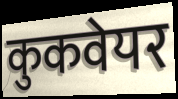
कुकवेयर